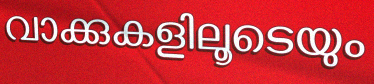
വാക്കുകളിലൂടെയും